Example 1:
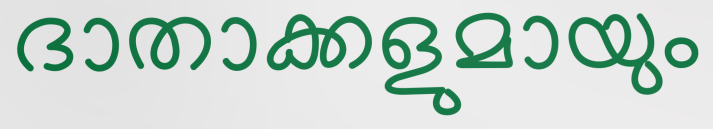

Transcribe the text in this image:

ദാതാക്കളുമായും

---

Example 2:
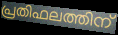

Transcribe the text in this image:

പ്രതിഫലത്തിന്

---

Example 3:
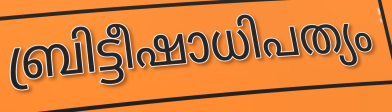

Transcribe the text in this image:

ബ്രിട്ടീഷാധിപത്യം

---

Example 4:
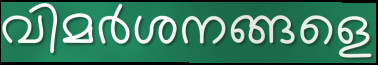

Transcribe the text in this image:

വിമർശനങ്ങളെ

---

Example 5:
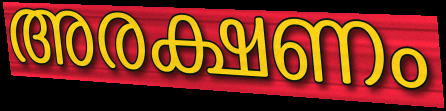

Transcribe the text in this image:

അരക്ഷണം